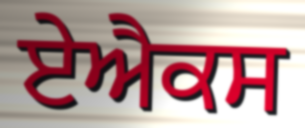
ਏਐਕਸ